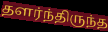
தளர்ந்திருந்த